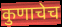
कुणाचेच